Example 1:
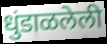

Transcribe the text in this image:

धुंडाळलेली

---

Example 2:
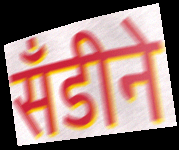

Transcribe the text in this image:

सॅंडीने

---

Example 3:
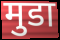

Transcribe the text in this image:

मुडा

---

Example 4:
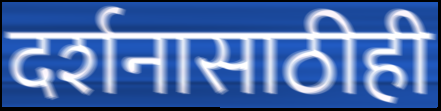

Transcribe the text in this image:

दर्शनासाठीही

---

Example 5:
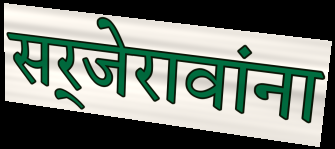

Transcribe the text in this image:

सर्जेरावांना